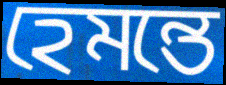
হেমন্তে